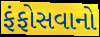
ફંફોસવાનો